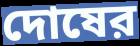
দোষের